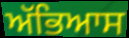
ਅੱਭਿਆਸ